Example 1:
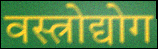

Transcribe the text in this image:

वस्त्रोद्योग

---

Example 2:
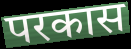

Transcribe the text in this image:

परकास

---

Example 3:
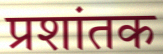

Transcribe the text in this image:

प्रशांतक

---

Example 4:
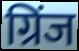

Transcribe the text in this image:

ग्रिंज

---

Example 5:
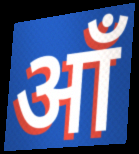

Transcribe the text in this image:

आँ